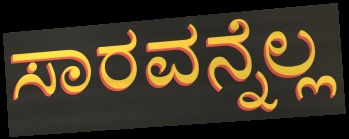
ಸಾರವನ್ನೆಲ್ಲ